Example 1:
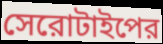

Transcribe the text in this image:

সেরোটাইপের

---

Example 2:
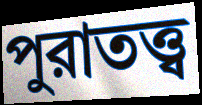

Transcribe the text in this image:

পুরাতত্ত্ব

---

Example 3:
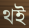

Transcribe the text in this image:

থই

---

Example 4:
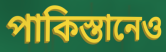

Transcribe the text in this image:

পাকিস্তানেও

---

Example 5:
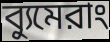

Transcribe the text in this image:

ব্যুমেরাং